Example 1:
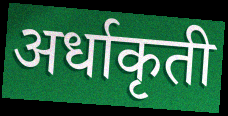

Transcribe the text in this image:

अर्धाकृती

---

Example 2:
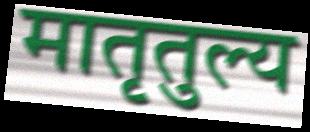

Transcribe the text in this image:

मातृतुल्य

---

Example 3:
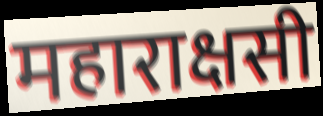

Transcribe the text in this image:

महाराक्षसी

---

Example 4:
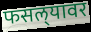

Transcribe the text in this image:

फसल्यावर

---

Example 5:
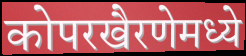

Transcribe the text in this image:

कोपरखैरणेमध्ये